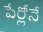
పేర్లోనే